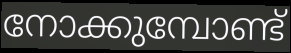
നോക്കുമ്പോണ്ട്